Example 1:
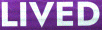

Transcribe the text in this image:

LIVED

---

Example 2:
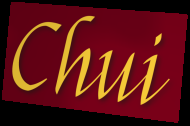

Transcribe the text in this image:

Chui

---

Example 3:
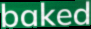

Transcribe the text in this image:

baked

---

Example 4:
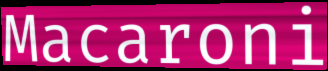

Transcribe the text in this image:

Macaroni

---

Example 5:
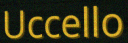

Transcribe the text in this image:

Uccello